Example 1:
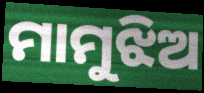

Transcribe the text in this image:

ମାମୁଝିଅ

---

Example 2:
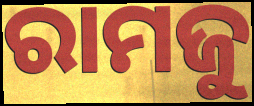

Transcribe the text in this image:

ରାମଜୁ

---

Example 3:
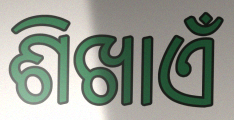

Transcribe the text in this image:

ଶିଖାଏଁ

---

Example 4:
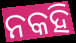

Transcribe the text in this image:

ନକହି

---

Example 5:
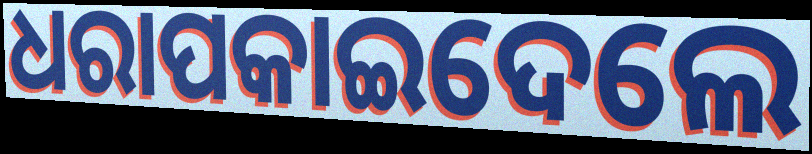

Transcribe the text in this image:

ଧରାପକାଇଦେଲେ